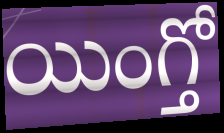
యింగ్తో